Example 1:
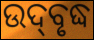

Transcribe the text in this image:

ଉଦ୍‌ବୃଦ୍ଧ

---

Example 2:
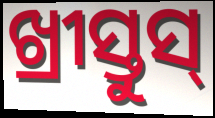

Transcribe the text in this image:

ଖ୍ରୀସ୍ତୁସ୍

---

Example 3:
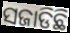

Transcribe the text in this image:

ସଜାଡିଛି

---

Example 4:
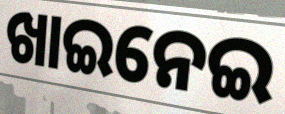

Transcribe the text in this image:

ଖାଇନେଇ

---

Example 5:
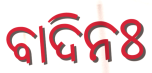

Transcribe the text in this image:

ବାଦିନଃ